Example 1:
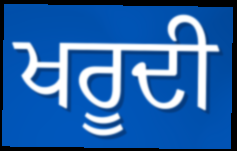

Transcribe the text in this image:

ਖਰੂਦੀ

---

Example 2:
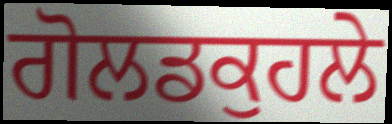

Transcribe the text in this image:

ਗੋਲਡਕੁਹਲੇ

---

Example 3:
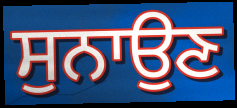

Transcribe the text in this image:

ਸੁਨਾਉਣ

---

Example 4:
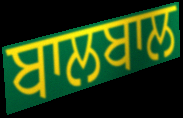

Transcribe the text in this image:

ਬਾਲਬਾਲ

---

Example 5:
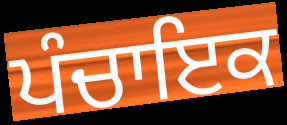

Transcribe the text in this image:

ਪੰਚਾਇਕ